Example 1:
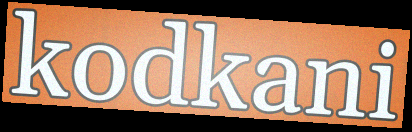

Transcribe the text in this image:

kodkani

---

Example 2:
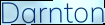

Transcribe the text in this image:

Darnton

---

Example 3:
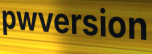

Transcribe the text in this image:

pwversion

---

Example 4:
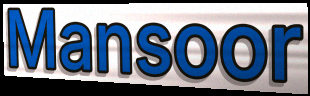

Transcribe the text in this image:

Mansoor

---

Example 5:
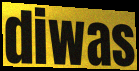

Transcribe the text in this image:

diwas